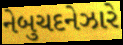
નેબુચદનેઝારે